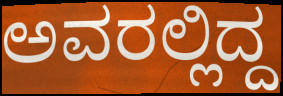
ಅವರಲ್ಲಿದ್ದ